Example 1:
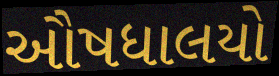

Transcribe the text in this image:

ઔષધાલયો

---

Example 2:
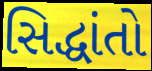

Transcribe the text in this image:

સિદ્ધાંતો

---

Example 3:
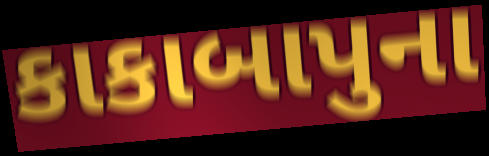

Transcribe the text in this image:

કાકાબાપુના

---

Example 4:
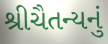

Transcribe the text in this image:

શ્રીચૈતન્યનું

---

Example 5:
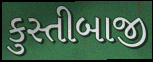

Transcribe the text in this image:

કુસ્તીબાજી